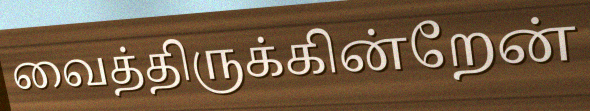
வைத்திருக்கின்றேன்